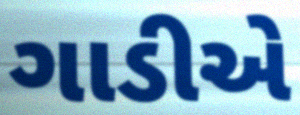
ગાડીએ